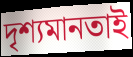
দৃশ্যমানতাই